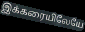
இக்கரையிலேயே